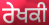
ਰੇਖਕੀ